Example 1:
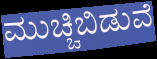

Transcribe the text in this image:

ಮುಚ್ಚಿಬಿಡುವೆ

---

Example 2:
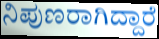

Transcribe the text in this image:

ನಿಪುಣರಾಗಿದ್ದಾರೆ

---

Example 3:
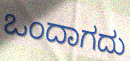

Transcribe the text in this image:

ಒಂದಾಗದು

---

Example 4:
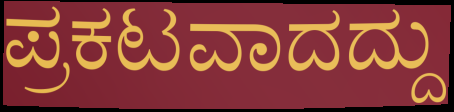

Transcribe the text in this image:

ಪ್ರಕಟವಾದದ್ದು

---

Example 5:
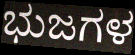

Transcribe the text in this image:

ಭುಜಗಳ